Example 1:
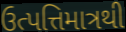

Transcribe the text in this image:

ઉત્પત્તિમાત્રથી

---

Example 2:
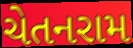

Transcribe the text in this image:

ચેતનરામ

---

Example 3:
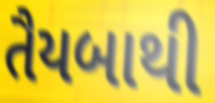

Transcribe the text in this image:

તૈયબાથી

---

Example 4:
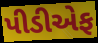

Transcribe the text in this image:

પીડીએફ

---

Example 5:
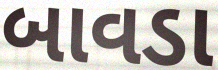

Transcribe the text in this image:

બાવડા